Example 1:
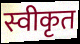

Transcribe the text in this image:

स्‍वीकृत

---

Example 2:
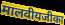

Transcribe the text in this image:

मालवीयजीका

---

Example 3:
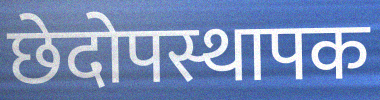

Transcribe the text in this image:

छेदोपस्थापक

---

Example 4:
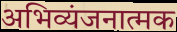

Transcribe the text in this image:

अभिव्यंजनात्मक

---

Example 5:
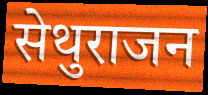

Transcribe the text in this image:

सेथुराजन